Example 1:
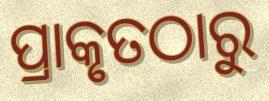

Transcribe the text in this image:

ପ୍ରାକୃତଠାରୁ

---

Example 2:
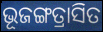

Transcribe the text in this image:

ଭୂଜଙ୍ଗତ୍ରାସିତ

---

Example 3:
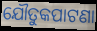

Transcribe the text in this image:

ଯୌତୁକପାଟଣା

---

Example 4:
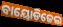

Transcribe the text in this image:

ବାୟୋଡିଜେଲ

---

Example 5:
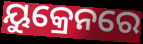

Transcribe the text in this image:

ୟୁକ୍ରେନରେ